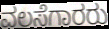
ವಲಸೆಗಾರರು